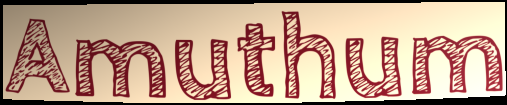
Amuthum